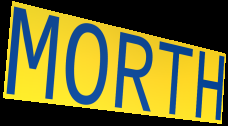
MORTH